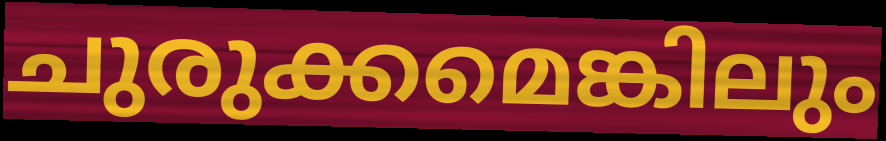
ചുരുക്കമെങ്കിലും